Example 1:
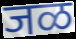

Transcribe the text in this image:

जळ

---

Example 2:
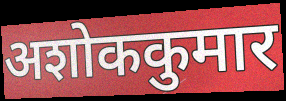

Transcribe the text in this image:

अशोककुमार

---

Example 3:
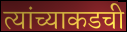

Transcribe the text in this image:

त्यांच्याकडची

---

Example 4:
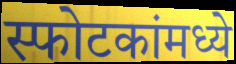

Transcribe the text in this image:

स्फोटकांमध्ये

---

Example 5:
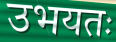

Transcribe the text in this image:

उभयतः